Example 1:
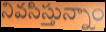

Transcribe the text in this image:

నివసిస్తున్నాం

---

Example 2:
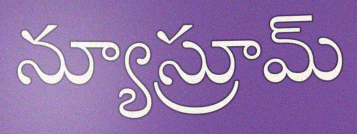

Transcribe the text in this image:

న్యూస్రూమ్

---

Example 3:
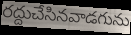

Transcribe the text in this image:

రద్దుచేసినవాడగును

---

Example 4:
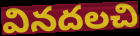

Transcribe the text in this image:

వినదలచి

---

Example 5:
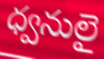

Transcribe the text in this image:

ధ్వనులై